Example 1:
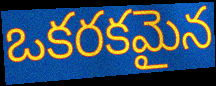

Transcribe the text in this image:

ఒకరకమైన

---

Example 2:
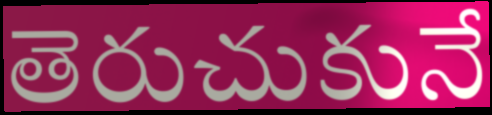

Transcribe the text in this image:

తెరుచుకునే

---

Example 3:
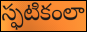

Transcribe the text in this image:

స్ఫటికంలా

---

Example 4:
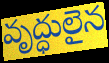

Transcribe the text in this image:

వృద్ధులైన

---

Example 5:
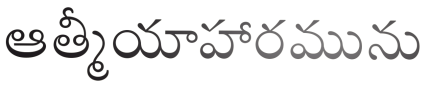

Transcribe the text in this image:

ఆత్మీయాహారమును